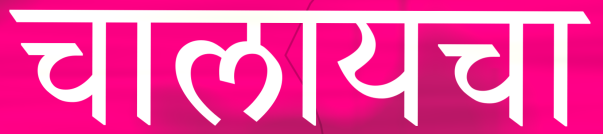
चालायचा